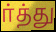
ர்த்து